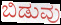
ಬಿಡುವು